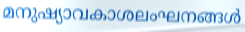
മനുഷ്യാവകാശലംഘനങ്ങൾ